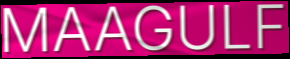
MAAGULF